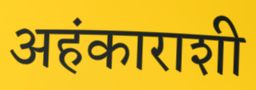
अहंकाराशी